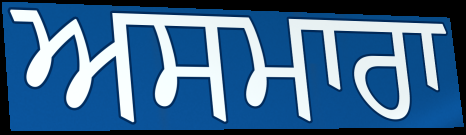
ਅਸਮਾਰਾ